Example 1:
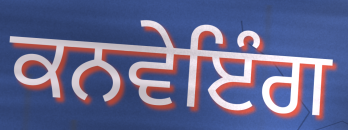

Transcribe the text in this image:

ਕਨਵੇਇੰਗ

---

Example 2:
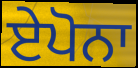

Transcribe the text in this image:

ਏਪੋਨਾ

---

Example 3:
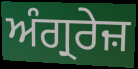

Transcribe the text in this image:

ਅੰਗ੍ਰਰੇਜ਼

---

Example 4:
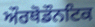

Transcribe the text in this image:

ਔਰਥੋਡੌਨਟਿਕ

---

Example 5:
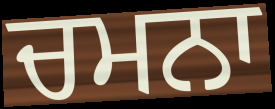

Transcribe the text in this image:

ਚਮਨਾ